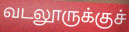
வடலூருக்குச்